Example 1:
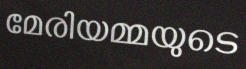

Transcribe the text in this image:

മേരിയമ്മയുടെ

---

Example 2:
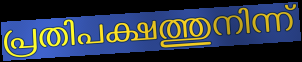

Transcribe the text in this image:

പ്രതിപക്ഷത്തുനിന്ന്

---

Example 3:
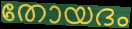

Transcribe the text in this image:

തോയദം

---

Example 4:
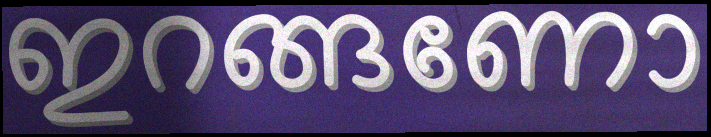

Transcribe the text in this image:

ഇറങ്ങണോ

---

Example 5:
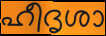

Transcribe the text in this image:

ഹീദൃശാ